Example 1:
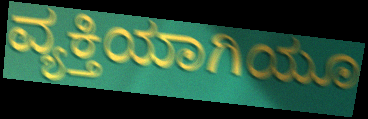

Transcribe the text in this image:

ವ್ಯಕ್ತಿಯಾಗಿಯೂ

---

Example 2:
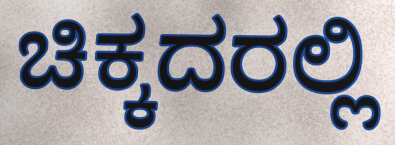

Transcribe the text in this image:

ಚಿಕ್ಕದರಲ್ಲಿ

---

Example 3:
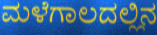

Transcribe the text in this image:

ಮಳೆಗಾಲದಲ್ಲಿನ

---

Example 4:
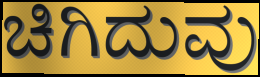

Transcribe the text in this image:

ಚಿಗಿದುವು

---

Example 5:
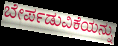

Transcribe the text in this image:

ಬೇರ್ಪಡುವಿಕೆಯನ್ನು